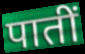
पातीं